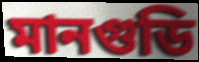
মানগুডি